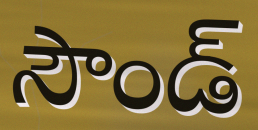
సౌండ్